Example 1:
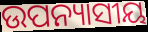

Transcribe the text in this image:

ଉପନ୍ୟାସୀୟ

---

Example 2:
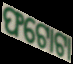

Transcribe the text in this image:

ଫଟୋଟା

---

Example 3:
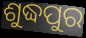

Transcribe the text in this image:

ଶୁଦ୍ଧପୁର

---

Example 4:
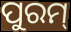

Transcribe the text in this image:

ପୁରମ୍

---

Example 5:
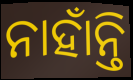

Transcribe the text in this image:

ନାହାଁନ୍ତି